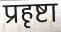
प्रहृष्टा